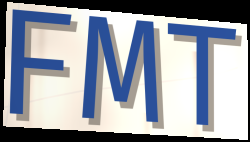
FMT